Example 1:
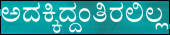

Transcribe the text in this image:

ಅದಕ್ಕಿದ್ದಂತಿರಲಿಲ್ಲ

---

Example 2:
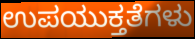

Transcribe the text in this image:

ಉಪಯುಕ್ತತೆಗಳು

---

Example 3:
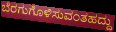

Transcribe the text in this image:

ಬೆರಗುಗೊಳಿಸುವಂತಹದ್ದು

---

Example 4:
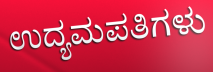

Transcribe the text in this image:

ಉದ್ಯಮಪತಿಗಳು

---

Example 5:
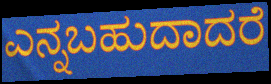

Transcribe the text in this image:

ಎನ್ನಬಹುದಾದರೆ